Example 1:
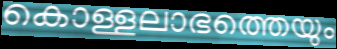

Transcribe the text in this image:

കൊള്ളലാഭത്തെയും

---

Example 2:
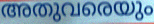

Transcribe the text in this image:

അതുവരെയും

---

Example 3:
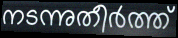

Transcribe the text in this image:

നടന്നുതീർത്ത്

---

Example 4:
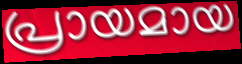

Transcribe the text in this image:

പ്രായമായ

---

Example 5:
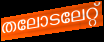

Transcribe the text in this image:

തലോടലേറ്റ്